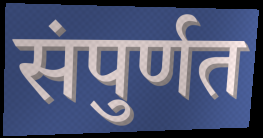
संपुर्णत